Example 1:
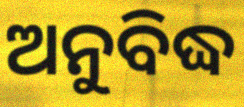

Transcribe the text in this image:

ଅନୁବିଦ୍ଧ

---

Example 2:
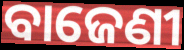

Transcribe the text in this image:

ବାଜେଣୀ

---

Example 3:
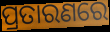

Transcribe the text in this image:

ପ୍ରତାରଣରେ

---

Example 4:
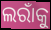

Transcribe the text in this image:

ଲରାଁକୁ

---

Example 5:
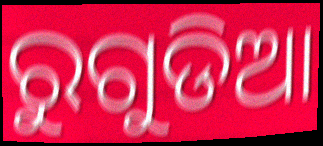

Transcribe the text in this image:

ରୁଗୁଡିଆ